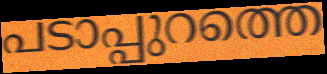
പടാപ്പുറത്തെ